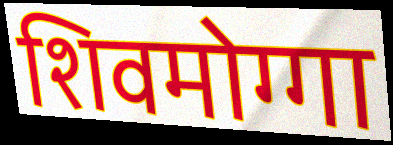
शिवमोग्गा